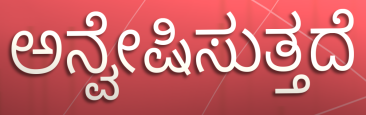
ಅನ್ವೇಷಿಸುತ್ತದೆ